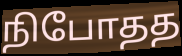
நிபோதத